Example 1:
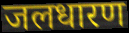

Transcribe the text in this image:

जलधारण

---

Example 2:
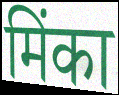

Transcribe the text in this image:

मिंका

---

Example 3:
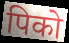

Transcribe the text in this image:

पिको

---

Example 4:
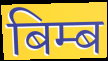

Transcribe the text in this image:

बिम्ब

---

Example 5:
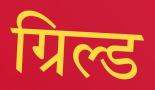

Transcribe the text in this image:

ग्रिल्ड